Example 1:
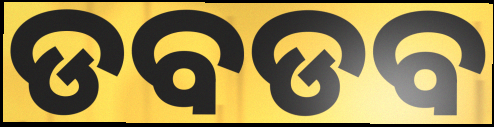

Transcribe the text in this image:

ଡବଡବ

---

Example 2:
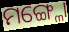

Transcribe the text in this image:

ମଙ୍ଗ୍ଳୋ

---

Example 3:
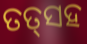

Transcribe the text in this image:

ତତ୍‌ସହ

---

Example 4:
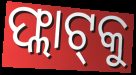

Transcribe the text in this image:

ଫ୍ଲାଟ୍‌କୁ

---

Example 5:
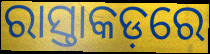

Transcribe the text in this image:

ରାସ୍ତାକଡ଼ରେ